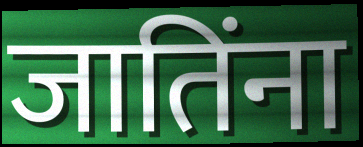
जातिंना